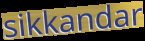
sikkandar